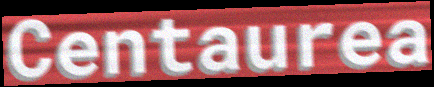
Centaurea